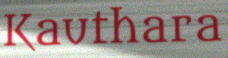
Kauthara